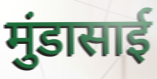
मुंडासाई